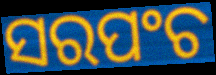
ସରପଂଚ